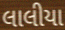
લાલીયા